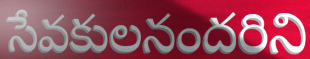
సేవకులనందరిని